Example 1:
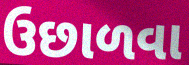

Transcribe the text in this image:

ઉછાળવા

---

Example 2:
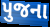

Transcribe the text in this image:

પુજના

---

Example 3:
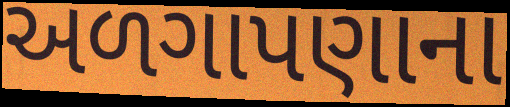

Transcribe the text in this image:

અળગાપણાના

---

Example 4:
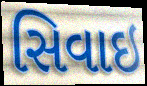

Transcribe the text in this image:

સિવાઇ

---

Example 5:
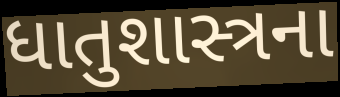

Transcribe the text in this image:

ધાતુશાસ્ત્રના